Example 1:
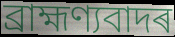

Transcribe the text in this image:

ব্ৰাহ্মণ্যবাদৰ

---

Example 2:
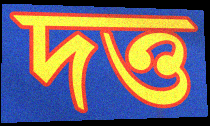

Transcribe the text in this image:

দত্ত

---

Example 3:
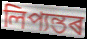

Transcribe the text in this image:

লিপ্যন্তৰ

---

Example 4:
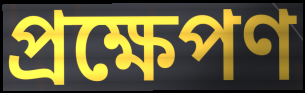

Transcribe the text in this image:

প্ৰক্ষেপণ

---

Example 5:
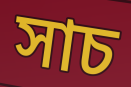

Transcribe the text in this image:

সাচ